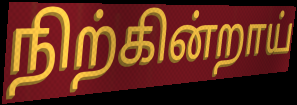
நிற்கின்றாய்